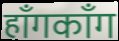
हाँगकाँग